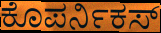
ಕೊಪರ್ನಿಕಸ್